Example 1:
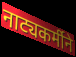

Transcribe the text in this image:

नाट्यकर्मीने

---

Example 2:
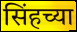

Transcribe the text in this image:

सिंहच्या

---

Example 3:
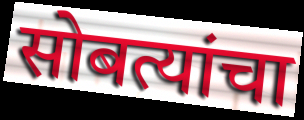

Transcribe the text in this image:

सोबत्यांचा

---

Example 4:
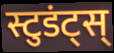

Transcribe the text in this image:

स्टुडंट्स्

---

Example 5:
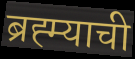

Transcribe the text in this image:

ब्रह्म्याची